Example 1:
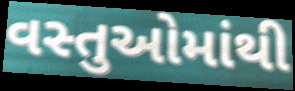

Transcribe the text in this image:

વસ્તુઓમાંથી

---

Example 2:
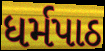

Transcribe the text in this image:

ધર્મપાઠ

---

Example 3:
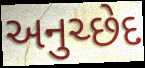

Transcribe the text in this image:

અનુચ્છેદ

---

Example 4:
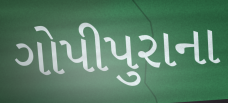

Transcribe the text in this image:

ગોપીપુરાના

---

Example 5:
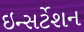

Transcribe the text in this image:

ઇન્સર્ટેશન